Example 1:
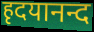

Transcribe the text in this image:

हृदयानन्द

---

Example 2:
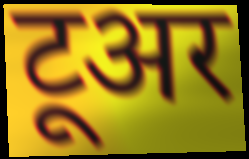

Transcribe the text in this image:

टूअर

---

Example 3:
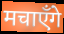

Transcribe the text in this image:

मचाएँगे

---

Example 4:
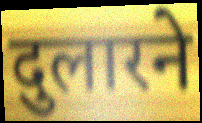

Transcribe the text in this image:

दुलारने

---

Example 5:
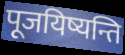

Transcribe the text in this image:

पूजयिष्यन्ति